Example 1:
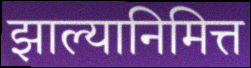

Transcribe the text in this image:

झाल्यानिमित्त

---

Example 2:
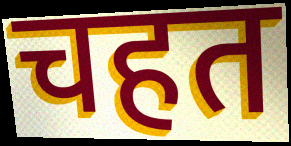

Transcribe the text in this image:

चहत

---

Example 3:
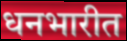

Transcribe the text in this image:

धनभारीत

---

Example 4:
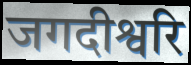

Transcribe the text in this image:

जगदीश्वरि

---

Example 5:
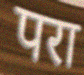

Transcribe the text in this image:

परा